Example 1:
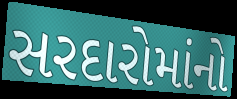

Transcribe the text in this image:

સરદારોમાંનો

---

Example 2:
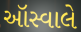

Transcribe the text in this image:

ઑસ્વાલે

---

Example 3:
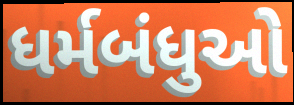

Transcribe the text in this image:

ધર્મબંધુઓ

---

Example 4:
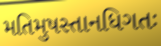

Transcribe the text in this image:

મતિમુષસ્તાનધિગતઃ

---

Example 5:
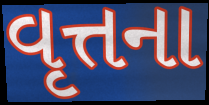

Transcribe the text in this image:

વૃત્તના